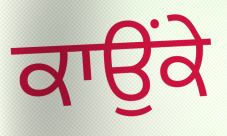
ਕਾਉਂਕੇ